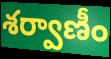
శర్వాణీం